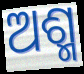
ଅଶ୍ମ